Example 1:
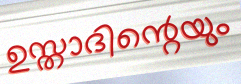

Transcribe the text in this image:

ഉസ്താദിന്റെയും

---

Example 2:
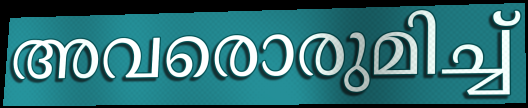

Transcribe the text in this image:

അവരൊരുമിച്ച്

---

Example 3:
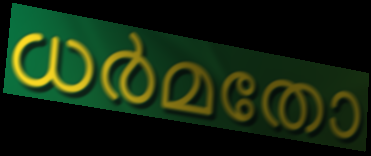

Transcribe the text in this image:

ധർമതോ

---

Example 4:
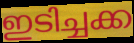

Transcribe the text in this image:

ഇടിച്ചക്ക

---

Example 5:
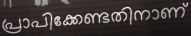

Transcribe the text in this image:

പ്രാപിക്കേണ്ടതിനാണ്